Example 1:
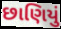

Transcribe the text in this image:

છાણિયું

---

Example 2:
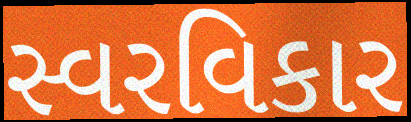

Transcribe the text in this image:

સ્વરવિકાર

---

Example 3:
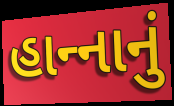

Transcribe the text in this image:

હાન્‍નાનું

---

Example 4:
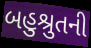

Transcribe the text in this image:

બહુશ્રુતની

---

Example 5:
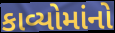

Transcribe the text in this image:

કાવ્યોમાંનો